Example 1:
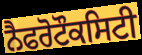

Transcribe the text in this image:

ਨੈਫਰੋਟੌਕਸਿਟੀ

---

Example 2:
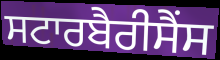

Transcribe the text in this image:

ਸਟਾਰਬੈਰੀਸੈਂਸ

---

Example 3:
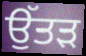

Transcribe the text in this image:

ਉੱਤੜ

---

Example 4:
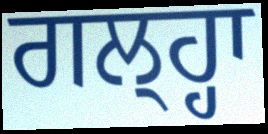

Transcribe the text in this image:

ਗਲ੍ਹ੍ਹਾ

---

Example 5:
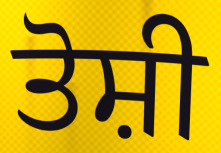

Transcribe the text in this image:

ਤੋਸ਼ੀ